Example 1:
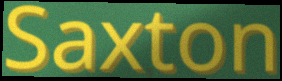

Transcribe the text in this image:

Saxton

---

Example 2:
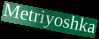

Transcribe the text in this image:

Metriyoshka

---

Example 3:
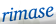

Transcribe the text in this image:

rimase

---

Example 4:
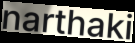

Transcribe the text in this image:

narthaki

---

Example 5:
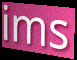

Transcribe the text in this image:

ims